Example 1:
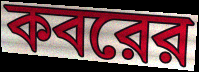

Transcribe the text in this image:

কবরের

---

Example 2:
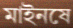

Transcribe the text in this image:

মাইনষে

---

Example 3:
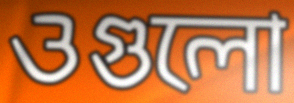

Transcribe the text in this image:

ওগুলো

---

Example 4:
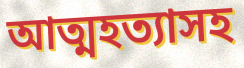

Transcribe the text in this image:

আত্মহত্যাসহ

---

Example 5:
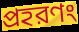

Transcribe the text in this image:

প্রহরণং